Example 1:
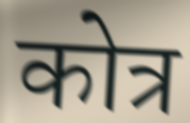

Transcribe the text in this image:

कोत्र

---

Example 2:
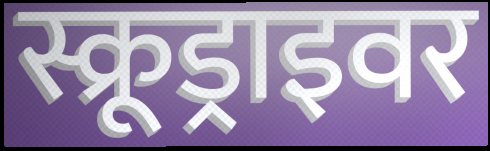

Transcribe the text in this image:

स्क्रूड्राइवर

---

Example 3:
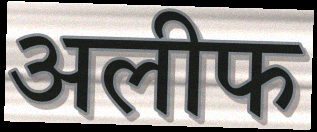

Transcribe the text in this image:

अलीफ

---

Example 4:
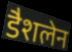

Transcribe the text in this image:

डैशलेन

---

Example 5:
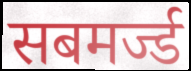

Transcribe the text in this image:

सबमर्ज्ड